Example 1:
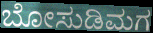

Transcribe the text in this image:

ಬೋಸುಡಿಮಗ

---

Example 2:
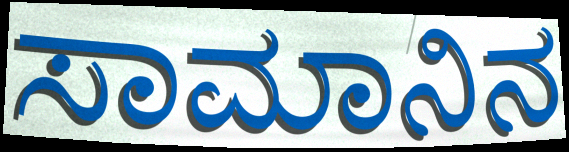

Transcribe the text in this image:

ಸಾಮಾನಿನ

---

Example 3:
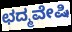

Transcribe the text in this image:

ಛದ್ಮವೇಷಿ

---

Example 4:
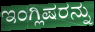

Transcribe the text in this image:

ಇಂಗ್ಲಿಷರನ್ನು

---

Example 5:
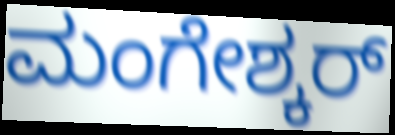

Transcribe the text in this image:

ಮಂಗೇಶ್ಕರ್